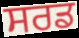
ਸਰਡ